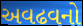
અવઢવનો